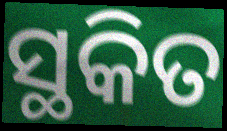
ସ୍ଥକିତ